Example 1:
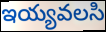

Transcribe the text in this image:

ఇయ్యవలసి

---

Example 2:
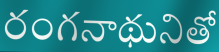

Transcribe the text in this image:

రంగనాథునితో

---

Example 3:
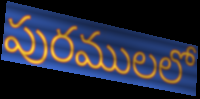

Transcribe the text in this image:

పురములలో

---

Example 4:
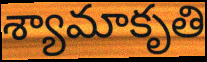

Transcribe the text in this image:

శ్యామాకృతి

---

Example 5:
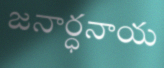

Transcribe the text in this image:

జనార్ధనాయ